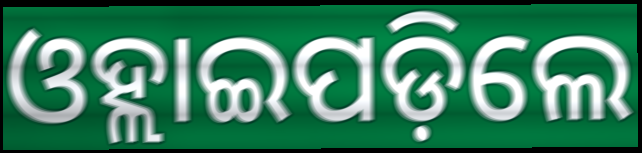
ଓହ୍ଲାଇପଡ଼ିଲେ